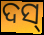
ଦସ୍